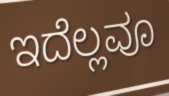
ಇದೆಲ್ಲವೂ